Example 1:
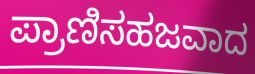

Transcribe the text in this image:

ಪ್ರಾಣಿಸಹಜವಾದ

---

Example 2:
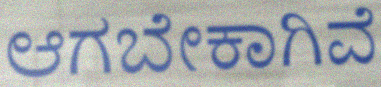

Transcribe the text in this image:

ಆಗಬೇಕಾಗಿವೆ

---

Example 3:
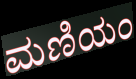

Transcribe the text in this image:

ಮಣಿಯಂ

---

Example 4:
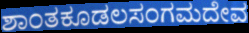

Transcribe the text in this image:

ಶಾಂತಕೂಡಲಸಂಗಮದೇವ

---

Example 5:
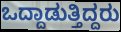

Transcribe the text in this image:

ಒದ್ದಾಡುತ್ತಿದ್ದರು